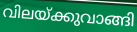
വിലയ്ക്കുവാങ്ങി